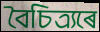
বৈচিত্ৰ্যৰে